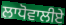
ਲਾਧੋਵਾਲੀਏ